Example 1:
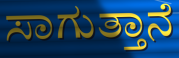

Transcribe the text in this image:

ಸಾಗುತ್ತಾನೆ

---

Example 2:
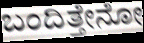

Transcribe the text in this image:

ಬಂದಿತ್ತೇನೋ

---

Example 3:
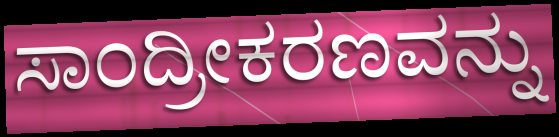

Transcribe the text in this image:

ಸಾಂದ್ರೀಕರಣವನ್ನು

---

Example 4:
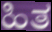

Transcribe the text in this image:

ಹಿತ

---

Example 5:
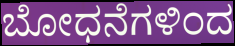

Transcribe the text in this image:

ಬೋಧನೆಗಳಿಂದ